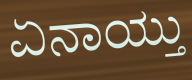
ಏನಾಯ್ತು